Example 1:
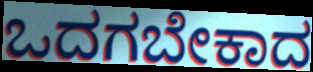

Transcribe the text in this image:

ಒದಗಬೇಕಾದ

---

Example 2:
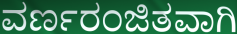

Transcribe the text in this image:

ವರ್ಣರಂಜಿತವಾಗಿ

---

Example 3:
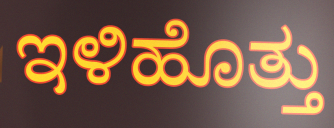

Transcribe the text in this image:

ಇಳಿಹೊತ್ತು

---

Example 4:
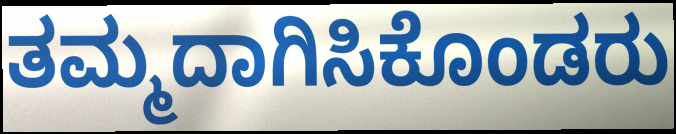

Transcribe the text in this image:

ತಮ್ಮದಾಗಿಸಿಕೊಂಡರು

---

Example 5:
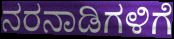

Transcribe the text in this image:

ನರನಾಡಿಗಳಿಗೆ